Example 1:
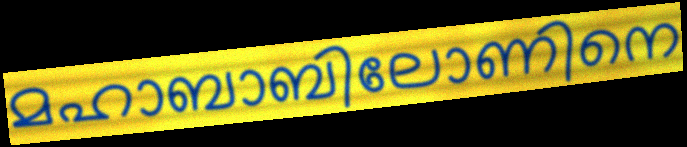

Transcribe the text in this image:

മഹാബാബിലോണിനെ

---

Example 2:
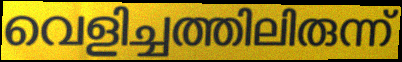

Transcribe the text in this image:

വെളിച്ചത്തിലിരുന്ന്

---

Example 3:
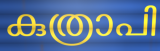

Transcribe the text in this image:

കുത്രാപി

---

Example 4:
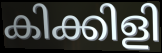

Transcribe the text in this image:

കിക്കിളി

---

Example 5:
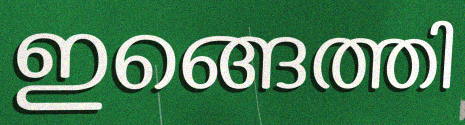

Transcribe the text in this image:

ഇങ്ങെത്തി